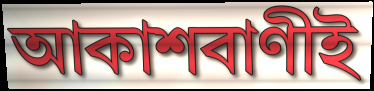
আকাশবাণীই